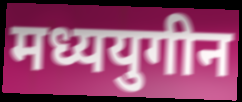
मध्ययुगीन